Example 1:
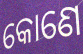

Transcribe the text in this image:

କୋଣେ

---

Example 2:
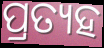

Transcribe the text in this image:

ପ୍ରତ୍ଯହ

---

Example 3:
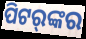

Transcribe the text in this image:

ପିଟର୍‌ଙ୍କର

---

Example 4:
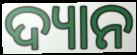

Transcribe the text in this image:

ଦ୍ୟାନ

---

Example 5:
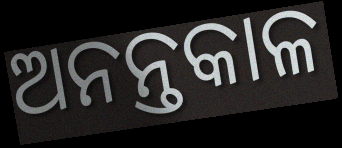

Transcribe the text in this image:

ଅନନ୍ତକାଳ